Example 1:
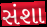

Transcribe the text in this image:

સંશા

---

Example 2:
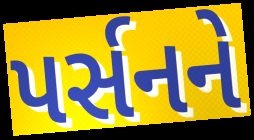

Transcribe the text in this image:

પર્સનને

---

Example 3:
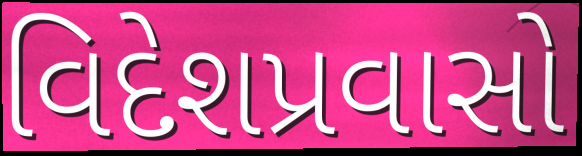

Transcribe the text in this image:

વિદેશપ્રવાસો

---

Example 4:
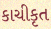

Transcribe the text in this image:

કાચીકૃત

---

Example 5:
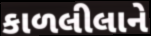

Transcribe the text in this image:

કાળલીલાને